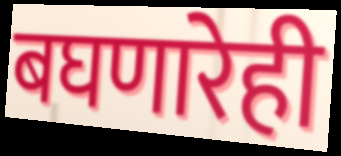
बघणारेही